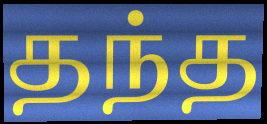
தந்த